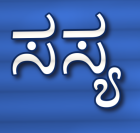
ಸಸ್ಯ